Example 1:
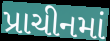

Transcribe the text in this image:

પ્રાચીનમાં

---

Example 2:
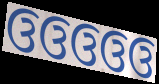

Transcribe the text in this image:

ઉઉઉઉઉ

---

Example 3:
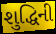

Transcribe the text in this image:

શુદ્ધિની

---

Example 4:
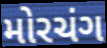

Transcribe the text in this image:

મોરચંગ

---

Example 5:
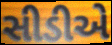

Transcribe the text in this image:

સીડીએ